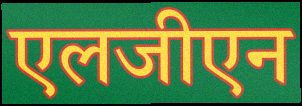
एलजीएन